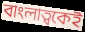
বাংলাত্বকেই